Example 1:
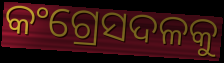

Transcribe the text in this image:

କଂଗ୍ରେସଦଳକୁ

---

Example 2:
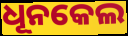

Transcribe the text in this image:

ଧୂନକେଲ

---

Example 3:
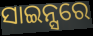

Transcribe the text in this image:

ସାଇନ୍ସରେ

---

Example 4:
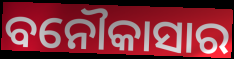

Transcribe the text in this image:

ବନୌକାସାର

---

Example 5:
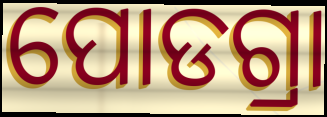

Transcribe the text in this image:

ପୋଡଗ୍ରା